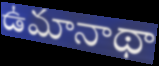
ఉమానాథా